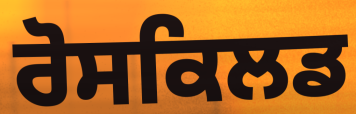
ਰੋਸਕਿਲਡ